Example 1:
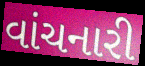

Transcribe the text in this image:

વાંચનારી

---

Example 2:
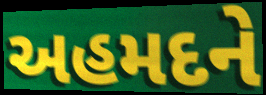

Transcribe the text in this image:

અહમદને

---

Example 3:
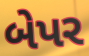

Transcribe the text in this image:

બેપર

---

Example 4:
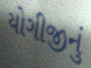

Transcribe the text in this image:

યોગીજીનું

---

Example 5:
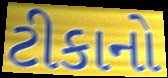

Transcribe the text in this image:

ટીકાનો